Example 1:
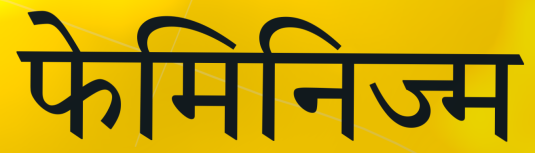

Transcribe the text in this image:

फेमिनिज्‍म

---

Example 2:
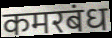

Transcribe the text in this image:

कमरबंध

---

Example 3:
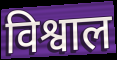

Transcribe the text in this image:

विश्वाल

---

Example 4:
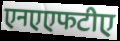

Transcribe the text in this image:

एनएएफटीए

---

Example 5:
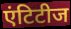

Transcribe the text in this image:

एंटिटीज